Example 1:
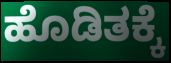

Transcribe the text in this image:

ಹೊಡಿತಕ್ಕೆ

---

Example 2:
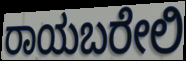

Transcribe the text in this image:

ರಾಯಬರೇಲಿ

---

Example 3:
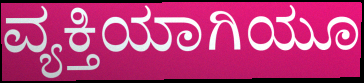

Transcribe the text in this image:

ವ್ಯಕ್ತಿಯಾಗಿಯೂ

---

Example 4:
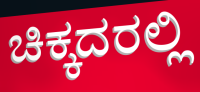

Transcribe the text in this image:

ಚಿಕ್ಕದರಲ್ಲಿ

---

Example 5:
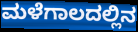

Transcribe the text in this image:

ಮಳೆಗಾಲದಲ್ಲಿನ